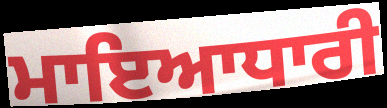
ਮਾਇਆਧਾਰੀ